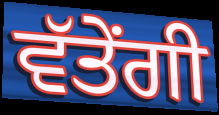
ਵੱਤੇਂਗੀ